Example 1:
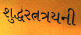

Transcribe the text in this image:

શુદ્ધરત્નત્રયની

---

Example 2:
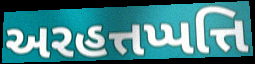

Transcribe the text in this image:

અરહત્તપ્પત્તિ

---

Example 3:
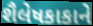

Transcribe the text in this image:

શૈલેષકાકાને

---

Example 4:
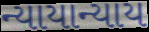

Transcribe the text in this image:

ન્યાયાન્યાય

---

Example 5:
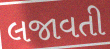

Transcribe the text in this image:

લજાવતી